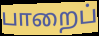
பாறைப்